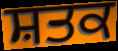
ਸ਼ਤਕ